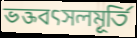
ভক্তবৎসলমূর্তি